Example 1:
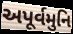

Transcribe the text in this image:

અપૂર્વમુનિ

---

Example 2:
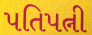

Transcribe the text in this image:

પતિપત્ની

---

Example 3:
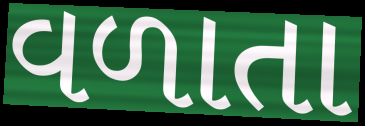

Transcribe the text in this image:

વળાતા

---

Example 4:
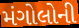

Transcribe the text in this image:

મંગોલોની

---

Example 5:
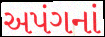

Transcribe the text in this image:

અપંગનાં